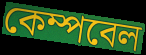
কেম্পবেল